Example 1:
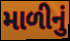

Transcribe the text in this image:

માળીનું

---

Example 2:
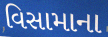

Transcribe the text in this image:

વિસામાના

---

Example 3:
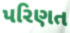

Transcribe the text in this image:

પરિણત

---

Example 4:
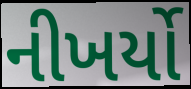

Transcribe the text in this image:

નીખર્યો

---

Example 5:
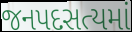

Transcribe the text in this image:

જનપદસત્યમાં